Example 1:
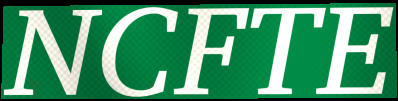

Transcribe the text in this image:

NCFTE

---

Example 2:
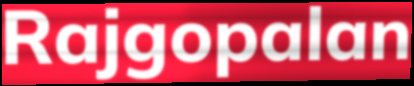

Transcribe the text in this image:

Rajgopalan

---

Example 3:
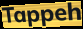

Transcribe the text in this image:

Tappeh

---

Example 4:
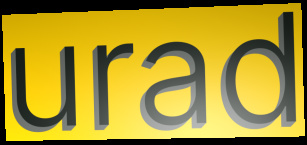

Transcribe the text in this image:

urad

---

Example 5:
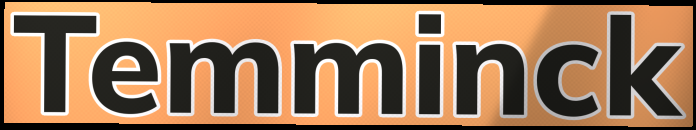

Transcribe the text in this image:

Temminck